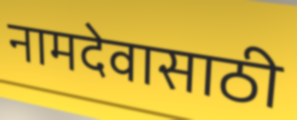
नामदेवासाठी